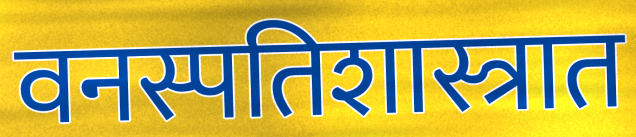
वनस्पतिशास्त्रात